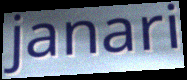
janari